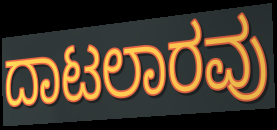
ದಾಟಲಾರವು